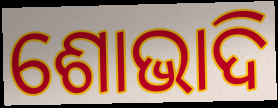
ଶୋଭାଦି